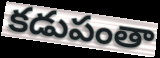
కడుపంతా